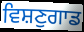
ਵਿਸ਼ਣੁਗਾਡ